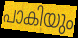
പാകിയും